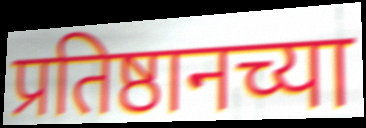
प्रतिष्ठानच्या